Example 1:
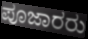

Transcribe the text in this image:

ಪೂಜಾರರು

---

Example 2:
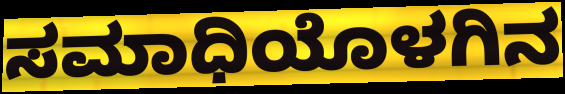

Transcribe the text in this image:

ಸಮಾಧಿಯೊಳಗಿನ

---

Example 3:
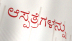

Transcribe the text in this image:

ಆಸ್ಪತ್ರೆಗಳನ್ನು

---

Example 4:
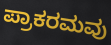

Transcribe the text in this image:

ಪ್ರಾಕರಮವು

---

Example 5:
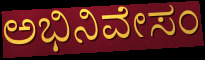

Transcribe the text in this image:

ಅಭಿನಿವೇಸಂ